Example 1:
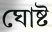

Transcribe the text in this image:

ঘোষ্ট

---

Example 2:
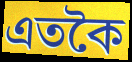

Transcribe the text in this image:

এতকৈ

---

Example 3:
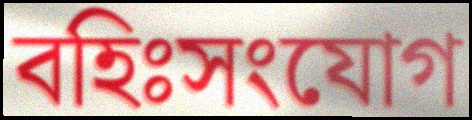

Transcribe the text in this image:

বহিঃসংযোগ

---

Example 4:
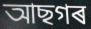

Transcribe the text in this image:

আছগৰ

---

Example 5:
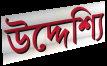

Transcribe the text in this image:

উদ্দেশ্যি